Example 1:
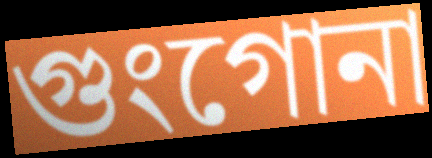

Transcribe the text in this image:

গুংগোনা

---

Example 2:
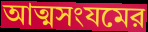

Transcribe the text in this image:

আত্মসংযমের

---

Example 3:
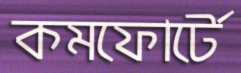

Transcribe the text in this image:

কমফোর্টে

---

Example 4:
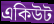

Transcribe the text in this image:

একিউট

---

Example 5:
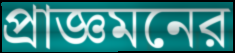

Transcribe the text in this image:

প্রাজ্ঞমনের